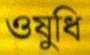
ওষুধি